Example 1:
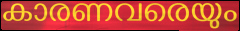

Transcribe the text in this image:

കാരണവരെയും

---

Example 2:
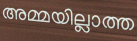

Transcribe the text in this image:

അമ്മയില്ലാത്ത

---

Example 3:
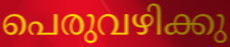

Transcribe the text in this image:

പെരുവഴിക്കു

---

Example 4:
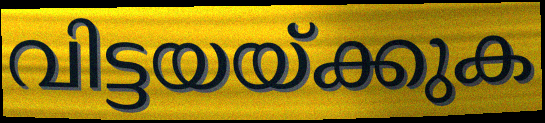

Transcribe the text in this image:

വിട്ടയയ്ക്കുക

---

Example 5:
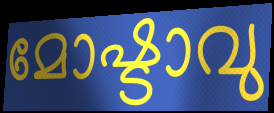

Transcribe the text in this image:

മോഷ്ടാവു